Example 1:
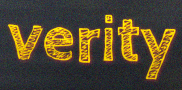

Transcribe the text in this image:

verity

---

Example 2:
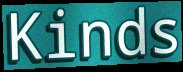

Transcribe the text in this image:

Kinds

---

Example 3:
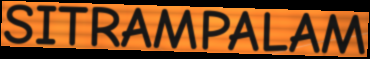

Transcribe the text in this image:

SITRAMPALAM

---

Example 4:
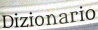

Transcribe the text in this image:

Dizionario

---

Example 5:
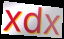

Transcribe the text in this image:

xdx